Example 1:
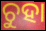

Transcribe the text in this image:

ଚୁହା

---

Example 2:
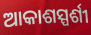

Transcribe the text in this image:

ଆକାଶସ୍ପର୍ଶୀ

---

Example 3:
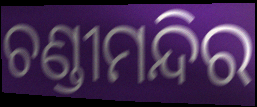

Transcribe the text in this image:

ଚଣ୍ଡୀମନ୍ଦିର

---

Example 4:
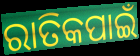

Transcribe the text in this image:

ରାତିକପାଇଁ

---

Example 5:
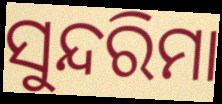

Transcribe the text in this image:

ସୁନ୍ଦରିମା